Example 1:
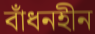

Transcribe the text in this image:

বাঁধনহীন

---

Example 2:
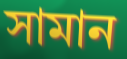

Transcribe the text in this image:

সামান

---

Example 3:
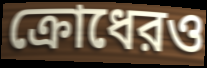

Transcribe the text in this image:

ক্রোধেরও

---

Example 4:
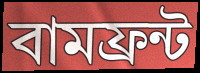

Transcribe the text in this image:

বামফ্রন্ট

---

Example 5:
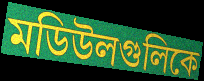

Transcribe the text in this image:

মডিউলগুলিকে